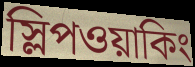
স্লিপওয়াকিং